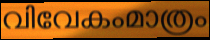
വിവേകംമാത്രം